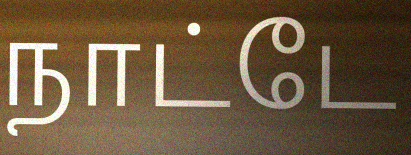
நாட்டே